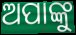
ଅପାଙ୍କୁ